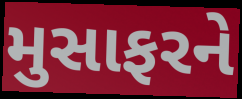
મુસાફરને